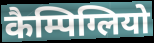
कैम्पिग्लियो